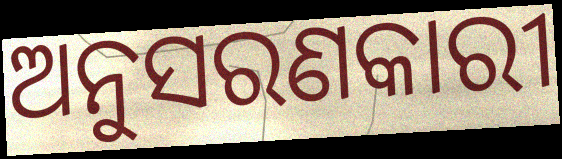
ଅନୁସରଣକାରୀ